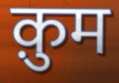
क़ुम